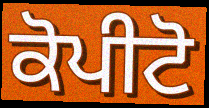
ਕੋਪੀਟੋ